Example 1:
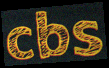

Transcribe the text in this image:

cbs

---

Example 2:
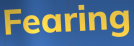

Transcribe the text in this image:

Fearing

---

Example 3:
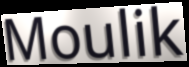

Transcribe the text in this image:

Moulik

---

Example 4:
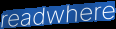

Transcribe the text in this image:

readwhere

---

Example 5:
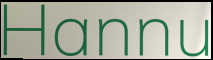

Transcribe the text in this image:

Hannu